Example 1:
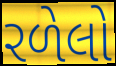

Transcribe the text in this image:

રળેલો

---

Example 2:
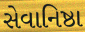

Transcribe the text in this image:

સેવાનિષ્ઠા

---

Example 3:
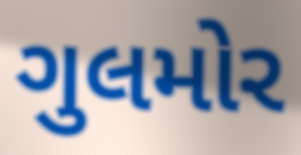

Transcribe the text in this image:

ગુલમોર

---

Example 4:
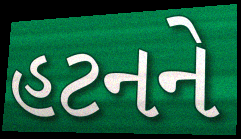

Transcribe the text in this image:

હટનને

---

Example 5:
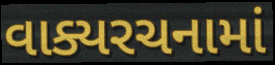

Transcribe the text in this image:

વાક્યરચનામાં